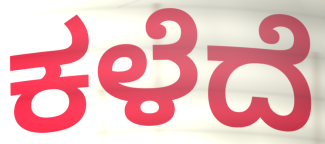
ಕಳೆದೆ